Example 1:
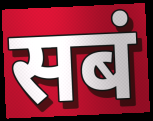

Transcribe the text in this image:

सबं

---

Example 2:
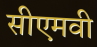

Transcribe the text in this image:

सीएमवी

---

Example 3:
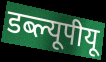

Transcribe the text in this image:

डब्ल्यूपीयू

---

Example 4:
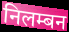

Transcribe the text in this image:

निलम्‍बन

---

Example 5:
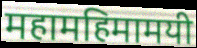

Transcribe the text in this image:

महामहिमामयी